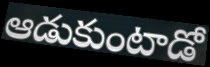
ఆడుకుంటాడో